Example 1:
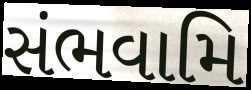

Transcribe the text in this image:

સંભવામિ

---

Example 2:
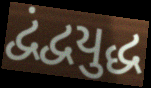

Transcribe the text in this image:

દ્વંદ્વયુદ્ધ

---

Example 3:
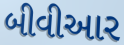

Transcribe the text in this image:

બીવીઆર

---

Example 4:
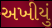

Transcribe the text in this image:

અખીયું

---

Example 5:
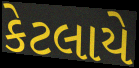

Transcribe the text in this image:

કેટલાયે